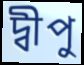
দ্বীপু